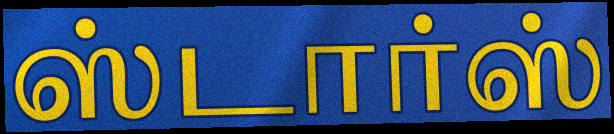
ஸ்டார்ஸ்